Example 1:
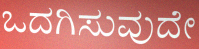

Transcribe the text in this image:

ಒದಗಿಸುವುದೇ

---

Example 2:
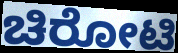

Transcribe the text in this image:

ಚಿರೋಟಿ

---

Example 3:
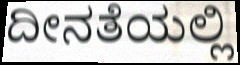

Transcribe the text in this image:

ದೀನತೆಯಲ್ಲಿ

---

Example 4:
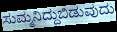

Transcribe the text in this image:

ಸುಮ್ಮನಿದ್ದುಬಿಡುವುದು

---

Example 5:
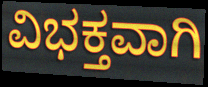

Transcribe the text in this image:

ವಿಭಕ್ತವಾಗಿ